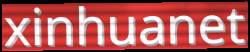
xinhuanet